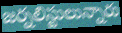
జర్నలిస్టులున్నారు